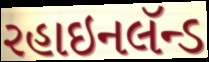
રહાઇનલૅન્ડ